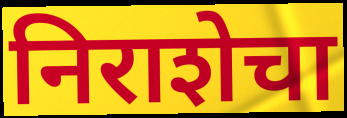
निराशेचा